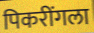
पिकरींगला